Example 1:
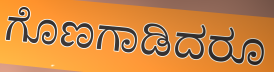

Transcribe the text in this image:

ಗೊಣಗಾಡಿದರೂ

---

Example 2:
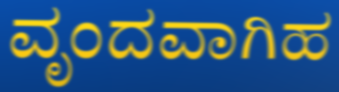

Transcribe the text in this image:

ವೃಂದವಾಗಿಹ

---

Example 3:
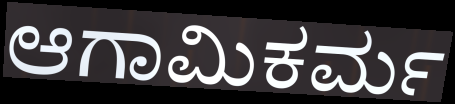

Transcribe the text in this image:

ಆಗಾಮಿಕರ್ಮ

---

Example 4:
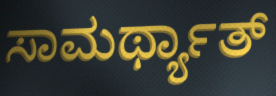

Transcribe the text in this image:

ಸಾಮರ್ಥ್ಯಾತ್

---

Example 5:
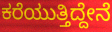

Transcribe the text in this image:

ಕರೆಯುತ್ತಿದ್ದೇನೆ